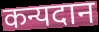
कन्यदान